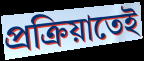
প্রক্রিয়াতেই